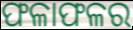
ଫଳାଫଳର